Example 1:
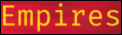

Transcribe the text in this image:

Empires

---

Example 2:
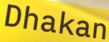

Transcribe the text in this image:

Dhakan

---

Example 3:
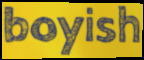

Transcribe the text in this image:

boyish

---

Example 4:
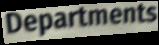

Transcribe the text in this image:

Departments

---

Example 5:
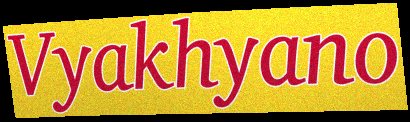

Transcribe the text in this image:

Vyakhyano